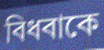
বিধবাকে